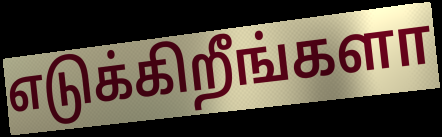
எடுக்கிறீங்களா